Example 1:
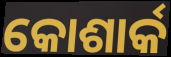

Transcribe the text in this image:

କୋଶାର୍କ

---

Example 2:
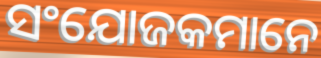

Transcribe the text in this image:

ସଂଯୋଜକମାନେ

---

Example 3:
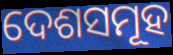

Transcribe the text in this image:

ଦେଶସମୂହ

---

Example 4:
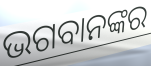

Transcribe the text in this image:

ଭଗବାନଙ୍କର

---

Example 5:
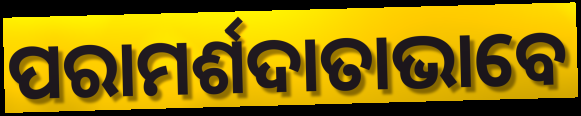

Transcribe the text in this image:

ପରାମର୍ଶଦାତାଭାବେ